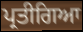
ਪ੍ਰਤੀਗਿਆ